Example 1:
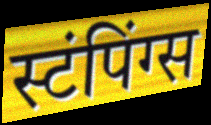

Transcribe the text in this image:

स्टंपिंग्स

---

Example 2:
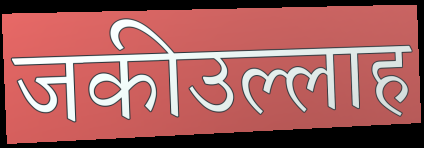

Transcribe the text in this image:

जकीउल्लाह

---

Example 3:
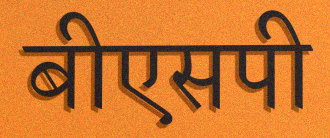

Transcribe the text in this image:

बीएसपी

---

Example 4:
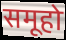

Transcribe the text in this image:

समूहो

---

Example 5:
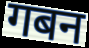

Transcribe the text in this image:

गबन